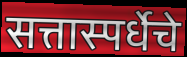
सत्तास्पर्धेचे